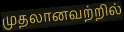
முதலானவற்றில்